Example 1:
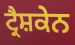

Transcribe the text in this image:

ਟ੍ਰੈਸ਼ਕੇਨ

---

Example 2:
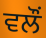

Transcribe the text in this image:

ਵਲੌਂ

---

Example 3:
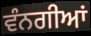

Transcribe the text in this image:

ਵੰਨਗੀਆਂ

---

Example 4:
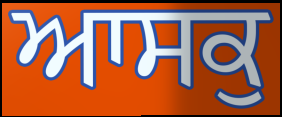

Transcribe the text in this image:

ਆਸਕੁ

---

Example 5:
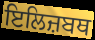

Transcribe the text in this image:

ਇਲਿਜ਼ਬਥ